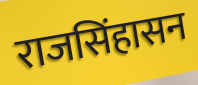
राजसिंहासन